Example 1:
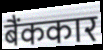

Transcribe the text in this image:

बैंककार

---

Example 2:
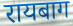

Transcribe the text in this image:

रायबाग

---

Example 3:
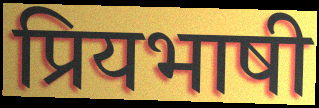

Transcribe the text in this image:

प्रियभाषी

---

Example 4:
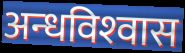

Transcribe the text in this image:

अन्‍धविश्‍वास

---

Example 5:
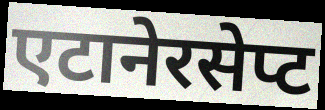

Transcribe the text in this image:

एटानेरसेप्ट